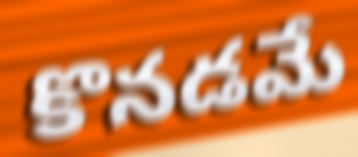
కొనడమే